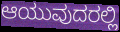
ಆಯುವುದರಲ್ಲಿ